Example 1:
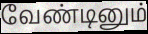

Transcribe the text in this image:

வேண்டினும்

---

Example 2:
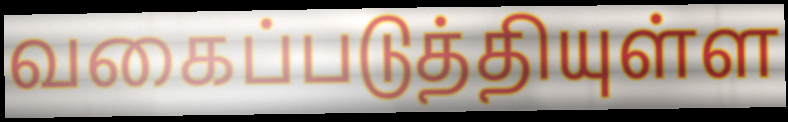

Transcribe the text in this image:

வகைப்படுத்தியுள்ள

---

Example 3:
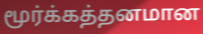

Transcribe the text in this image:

மூர்க்கத்தனமான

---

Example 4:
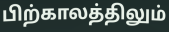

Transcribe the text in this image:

பிற்காலத்திலும்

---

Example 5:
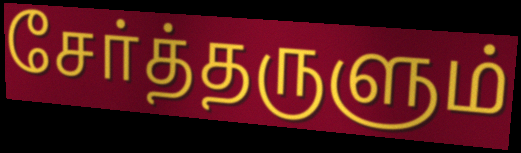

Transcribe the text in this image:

சேர்த்தருளும்